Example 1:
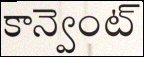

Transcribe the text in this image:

కాన్వెంట్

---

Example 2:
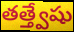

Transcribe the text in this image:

తత్త్వేషు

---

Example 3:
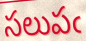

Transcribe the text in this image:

సలుపఁ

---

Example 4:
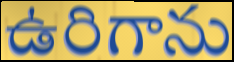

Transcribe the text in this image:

ఉరిగాను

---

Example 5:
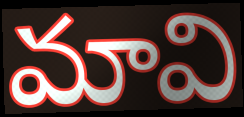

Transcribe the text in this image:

మావి